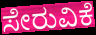
ಸೇರುವಿಕೆ